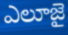
ఎలూజై